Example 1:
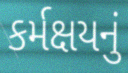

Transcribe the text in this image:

કર્મક્ષયનું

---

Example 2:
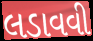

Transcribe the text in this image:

લડાવવી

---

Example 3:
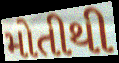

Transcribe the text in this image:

મોતીથી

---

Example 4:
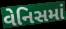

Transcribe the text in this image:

વેનિસમાં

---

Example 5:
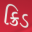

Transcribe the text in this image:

ક્રિડ